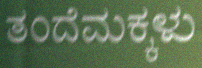
ತಂದೆಮಕ್ಕಳು